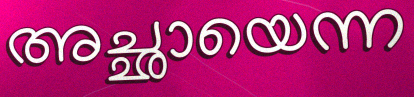
അച്ഛായെന്ന